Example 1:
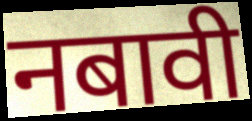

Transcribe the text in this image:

नबावी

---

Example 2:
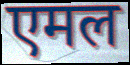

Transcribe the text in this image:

एमल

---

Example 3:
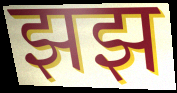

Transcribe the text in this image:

झझ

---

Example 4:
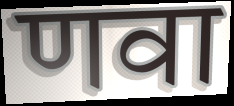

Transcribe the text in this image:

णवा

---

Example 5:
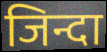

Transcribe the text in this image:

जिन्‍दा